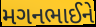
મગનભાઈને